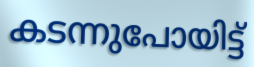
കടന്നുപോയിട്ട്